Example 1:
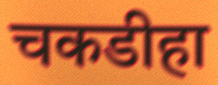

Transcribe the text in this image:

चकडीहा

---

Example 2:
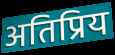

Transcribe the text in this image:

अतिप्रिय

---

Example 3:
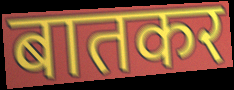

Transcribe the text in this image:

बातकर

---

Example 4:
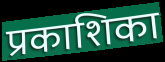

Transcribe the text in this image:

प्रकाशिका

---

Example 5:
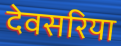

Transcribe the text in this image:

देवसरिया